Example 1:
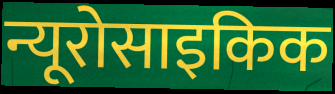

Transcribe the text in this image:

न्यूरोसाइकिक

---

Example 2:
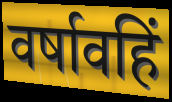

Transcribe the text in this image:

वर्षावहिं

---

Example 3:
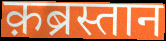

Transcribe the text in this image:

क़ब्रस्तान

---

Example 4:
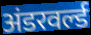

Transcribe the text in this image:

अंडरवर्ल्ड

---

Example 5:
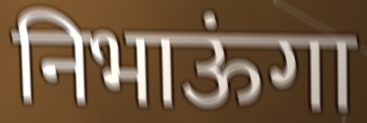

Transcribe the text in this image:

निभाऊंगा